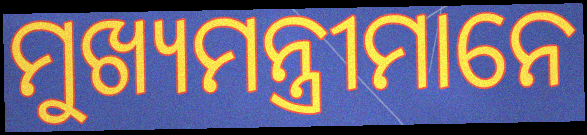
ମୁଖ୍ୟମନ୍ତ୍ରୀମାନେ